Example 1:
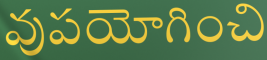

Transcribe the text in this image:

వుపయోగించి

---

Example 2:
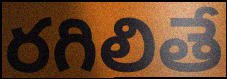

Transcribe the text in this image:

రగిలితే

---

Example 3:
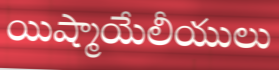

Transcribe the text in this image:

యిష్మాయేలీయులు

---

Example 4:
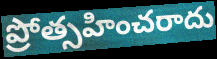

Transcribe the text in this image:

ప్రోత్సహించరాదు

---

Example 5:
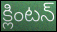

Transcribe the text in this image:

క్లింటన్